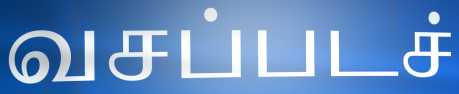
வசப்படச்